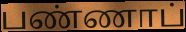
பண்ணாப்